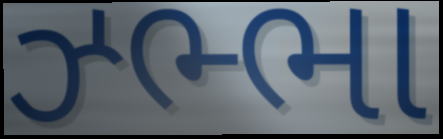
ઝ્ભ્ભા